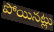
పోయినట్లు